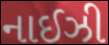
નાઈઝી